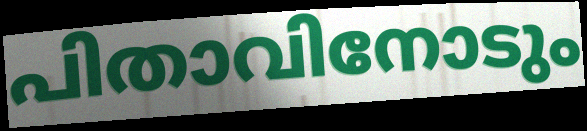
പിതാവിനോടും